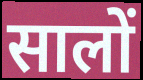
सालों